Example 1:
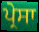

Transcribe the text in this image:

ਪ੍ਰੇਸਾ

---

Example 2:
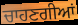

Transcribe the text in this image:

ਚਾਹਣਗੀਆਂ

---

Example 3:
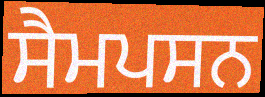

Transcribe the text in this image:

ਸੈਮਪਸਨ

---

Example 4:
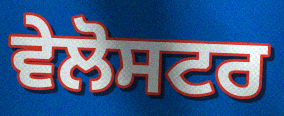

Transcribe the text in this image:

ਵੇਲੋਸਟਰ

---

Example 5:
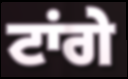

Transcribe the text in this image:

ਟਾਂਗੇ